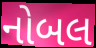
નોબલ